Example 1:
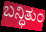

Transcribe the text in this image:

ಬನ್ಧಿತುಂ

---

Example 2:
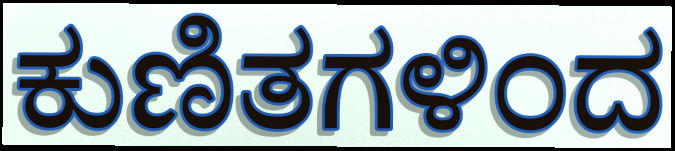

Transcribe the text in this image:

ಕುಣಿತಗಳಿಂದ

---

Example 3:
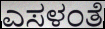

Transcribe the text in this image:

ಎಸಳಂತೆ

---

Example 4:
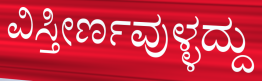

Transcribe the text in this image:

ವಿಸ್ತೀರ್ಣವುಳ್ಳದ್ದು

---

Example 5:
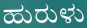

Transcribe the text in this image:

ಹುರುಳು